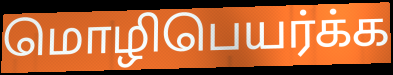
மொழிபெயர்க்க